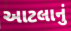
આટલાનું